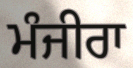
ਮੰਜੀਰਾ